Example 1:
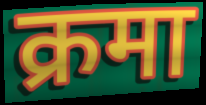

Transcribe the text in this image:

क्रमा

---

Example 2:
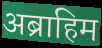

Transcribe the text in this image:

अब्राहिम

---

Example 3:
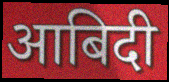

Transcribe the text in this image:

आबिदी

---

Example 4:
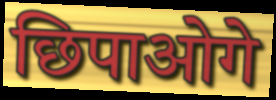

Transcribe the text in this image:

छिपाओगे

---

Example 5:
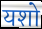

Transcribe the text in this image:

यशो